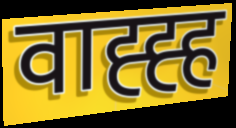
वाह्ह्ह